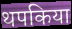
थपकिया